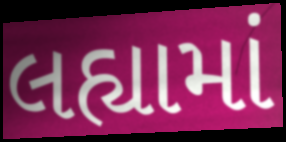
લહ્યામાં